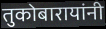
तुकोबारायांनी